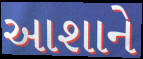
આશાને